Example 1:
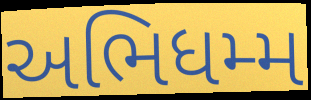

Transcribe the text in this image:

અભિધમ્મ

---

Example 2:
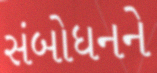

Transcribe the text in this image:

સંબોધનને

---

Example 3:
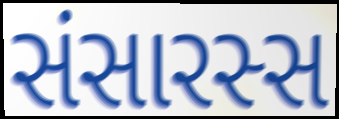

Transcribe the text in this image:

સંસારસ્સ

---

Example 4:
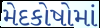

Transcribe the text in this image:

મેદકોષોમાં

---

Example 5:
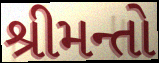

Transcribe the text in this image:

શ્રીમન્તો